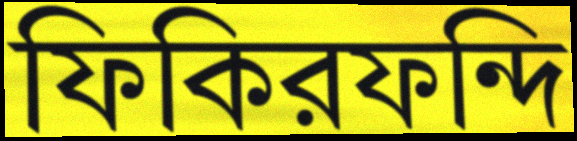
ফিকিরফন্দি